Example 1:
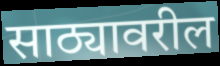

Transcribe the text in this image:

साठ्यावरील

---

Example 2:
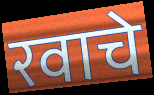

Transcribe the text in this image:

रवाचे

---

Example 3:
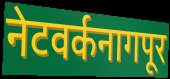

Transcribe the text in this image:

नेटवर्कनागपूर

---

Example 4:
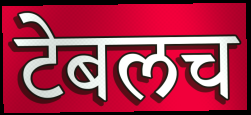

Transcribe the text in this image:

टेबलच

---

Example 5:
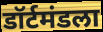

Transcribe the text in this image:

डॉर्टमंडला